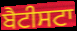
ਬੈਟੀਸਟਾ